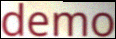
demo